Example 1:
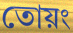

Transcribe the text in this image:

তোয়ং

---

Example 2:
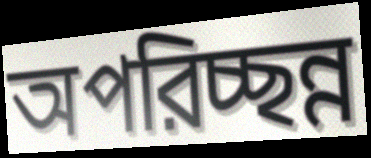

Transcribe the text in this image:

অপরিচ্ছন্ন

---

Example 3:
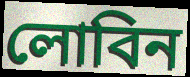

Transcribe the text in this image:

লোবিন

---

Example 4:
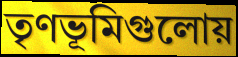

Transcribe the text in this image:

তৃণভূমিগুলোয়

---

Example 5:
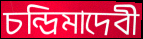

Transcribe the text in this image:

চন্দ্রিমাদেবী